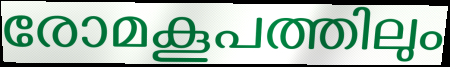
രോമകൂപത്തിലും